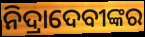
ନିଦ୍ରାଦେବୀଙ୍କର